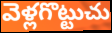
వెళ్లగొట్టుచు